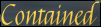
Contained